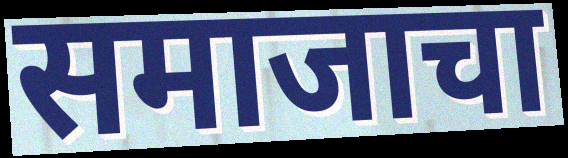
समाजाचा